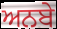
ਅਨਬੇ